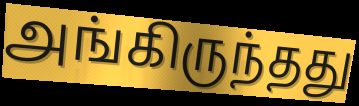
அங்கிருந்தது